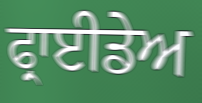
ਫ੍ਰਾਈਡੇਅ